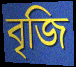
বৃজি